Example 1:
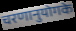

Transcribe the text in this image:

चरणानुयोगके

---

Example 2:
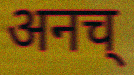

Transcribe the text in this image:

अनच्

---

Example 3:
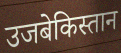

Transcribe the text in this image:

उजबेकिस्तान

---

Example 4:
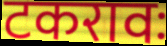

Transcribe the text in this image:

टकरावः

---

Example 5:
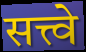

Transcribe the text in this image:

सत्त्वे